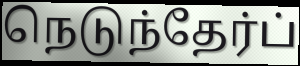
நெடுந்தேர்ப்